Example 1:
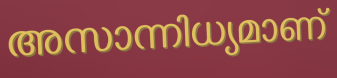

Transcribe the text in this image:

അസാന്നിധ്യമാണ്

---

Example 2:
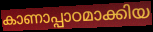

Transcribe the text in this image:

കാണാപ്പാഠമാക്കിയ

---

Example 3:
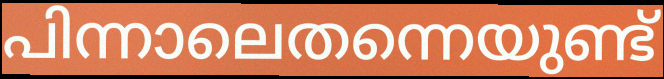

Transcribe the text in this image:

പിന്നാലെതന്നെയുണ്ട്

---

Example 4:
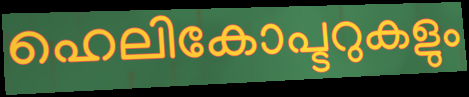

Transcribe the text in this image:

ഹെലികോപ്ടറുകളും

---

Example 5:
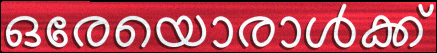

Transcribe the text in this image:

ഒരേയൊരാൾക്ക്